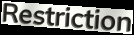
Restriction